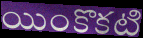
యింకొకటి